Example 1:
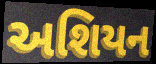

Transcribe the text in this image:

અશિયન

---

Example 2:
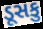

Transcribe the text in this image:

ડૂસકુ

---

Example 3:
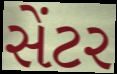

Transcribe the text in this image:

સેંટર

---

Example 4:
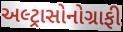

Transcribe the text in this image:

અલ્ટ્રાસોનોગ્રાફી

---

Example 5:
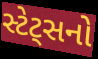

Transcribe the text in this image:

સ્ટેટ્સનો